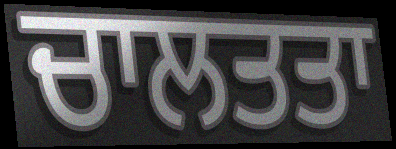
ਚਾਲਤਤਾ